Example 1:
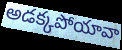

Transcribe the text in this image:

అడక్కపోయావా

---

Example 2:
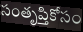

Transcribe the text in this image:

సంతృప్తికోసం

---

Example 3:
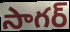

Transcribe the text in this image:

సాగర్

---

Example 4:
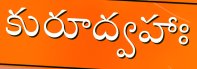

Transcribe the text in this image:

కురూద్వహాః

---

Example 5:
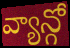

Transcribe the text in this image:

వ్యాన్గో